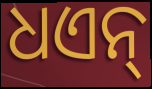
ଧଏନ୍